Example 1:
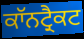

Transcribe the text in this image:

ਕਾੱਨਟ੍ਰੈਕਟ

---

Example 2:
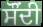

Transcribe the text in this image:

ਸੌਂਦੀ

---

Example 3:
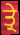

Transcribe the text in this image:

ਤ੍ਰੇ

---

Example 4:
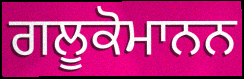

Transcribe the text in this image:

ਗਲੂਕੋਮਾਨਨ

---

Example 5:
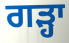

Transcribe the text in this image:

ਗੜ੍ਹਾ